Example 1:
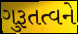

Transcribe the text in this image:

ગુરૂતત્વને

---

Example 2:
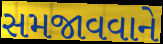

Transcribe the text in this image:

સમજાવવાને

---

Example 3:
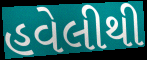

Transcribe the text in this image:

હવેલીથી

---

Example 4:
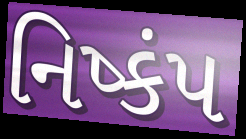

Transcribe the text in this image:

નિષ્કંપ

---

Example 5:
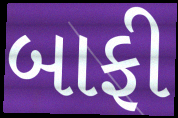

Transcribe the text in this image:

બાફી